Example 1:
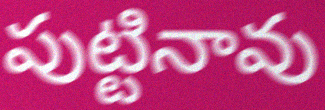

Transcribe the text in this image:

పుట్టినావు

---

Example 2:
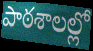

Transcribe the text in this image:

పాఠశాలల్లో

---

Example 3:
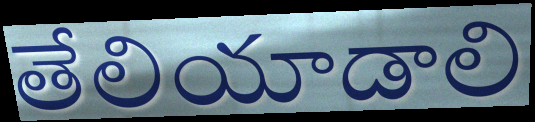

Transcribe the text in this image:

తేలియాడాలి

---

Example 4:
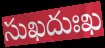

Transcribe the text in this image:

సుఖదుఃఖ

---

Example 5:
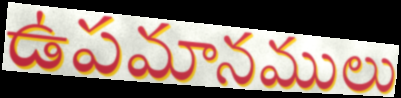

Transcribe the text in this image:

ఉపమానములు